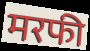
मरफी